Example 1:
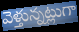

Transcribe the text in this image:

వెళ్తున్నట్లుగా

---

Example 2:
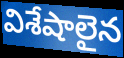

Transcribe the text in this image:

విశేషాలైన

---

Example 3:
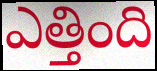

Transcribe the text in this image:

ఎత్తింది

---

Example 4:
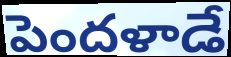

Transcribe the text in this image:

పెందళాడే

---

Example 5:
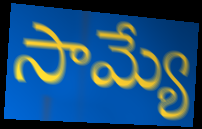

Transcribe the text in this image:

సామ్యే